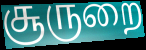
சூருறை